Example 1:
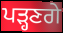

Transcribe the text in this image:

ਪੜ੍ਹਣਗੇ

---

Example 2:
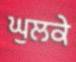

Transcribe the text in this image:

ਘੁਲਕੇ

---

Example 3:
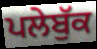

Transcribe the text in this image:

ਪਲੇਬੁੱਕ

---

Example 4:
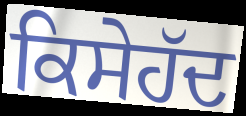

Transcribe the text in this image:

ਕਿਸੇਹੱਦ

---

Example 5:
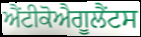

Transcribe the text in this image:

ਐਂਟੀਕੋਐਗੂਲੈਂਟਸ